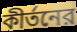
কীর্তনের